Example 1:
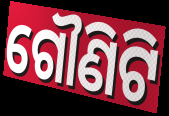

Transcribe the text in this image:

ଗୌଣିଟି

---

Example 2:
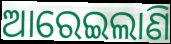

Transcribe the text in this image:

ଆରେଇଲାଣି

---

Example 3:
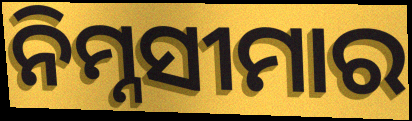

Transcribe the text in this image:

ନିମ୍ନସୀମାର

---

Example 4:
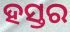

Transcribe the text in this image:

ହସ୍ତର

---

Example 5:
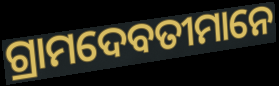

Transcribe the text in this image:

ଗ୍ରାମଦେବତୀମାନେ